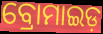
ବ୍ରୋମାଇଡ଼